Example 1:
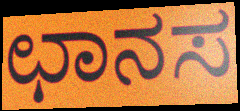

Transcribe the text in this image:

ಛಾನಸ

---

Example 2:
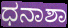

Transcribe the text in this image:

ಧನಾಶಾ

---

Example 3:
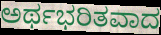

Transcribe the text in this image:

ಅರ್ಥಭರಿತವಾದ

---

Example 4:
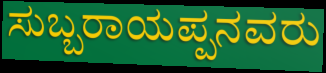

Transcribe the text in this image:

ಸುಬ್ಬರಾಯಪ್ಪನವರು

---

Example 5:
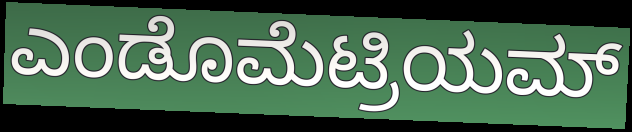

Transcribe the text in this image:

ಎಂಡೊಮೆಟ್ರಿಯಮ್